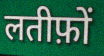
लतीफ़ों